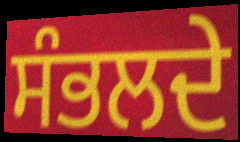
ਸੰਭਲਦੇ